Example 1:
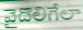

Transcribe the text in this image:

వైదొలిగేలా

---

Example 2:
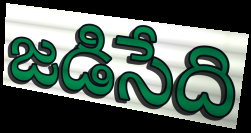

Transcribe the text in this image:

జడిసేది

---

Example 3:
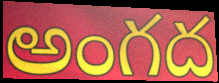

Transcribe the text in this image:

అంగద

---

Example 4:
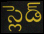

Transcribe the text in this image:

స్లెడ్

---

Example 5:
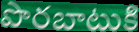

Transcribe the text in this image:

పొరబాటుకి